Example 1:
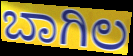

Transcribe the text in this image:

ಬಾಗಿಲ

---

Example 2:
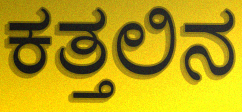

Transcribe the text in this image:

ಕತ್ತಲಿನ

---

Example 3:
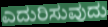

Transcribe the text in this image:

ಎದುರಿಸುವುದು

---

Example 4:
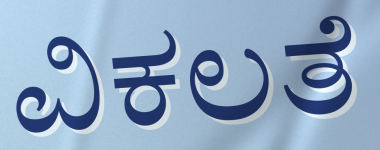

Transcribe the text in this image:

ವಿಕಲತೆ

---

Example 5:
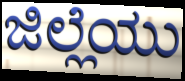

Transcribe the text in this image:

ಜಿಲ್ಲೆಯು